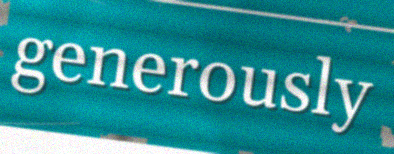
generously